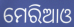
ମେରିଆଓ